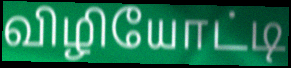
விழியோட்டி